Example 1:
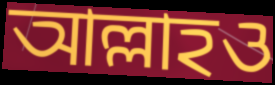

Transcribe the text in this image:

আল্লাহও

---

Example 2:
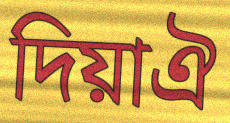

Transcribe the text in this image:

দিয়াঐ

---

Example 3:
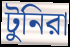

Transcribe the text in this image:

টুনিরা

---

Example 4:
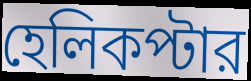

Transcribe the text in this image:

হেলিকপ্টার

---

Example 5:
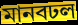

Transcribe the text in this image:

মানবঢল